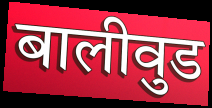
बालीवुड